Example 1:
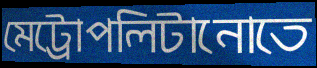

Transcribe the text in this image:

মেট্রোপলিটানোতে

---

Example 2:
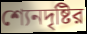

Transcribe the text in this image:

শ্যেনদৃষ্টির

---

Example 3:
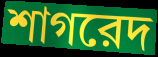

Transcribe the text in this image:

শাগরেদ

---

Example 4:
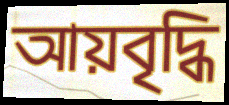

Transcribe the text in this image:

আয়বৃদ্ধি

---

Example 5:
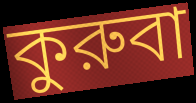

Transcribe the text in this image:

কুরুবা